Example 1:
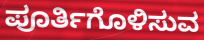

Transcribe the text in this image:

ಪೂರ್ತಿಗೊಳಿಸುವ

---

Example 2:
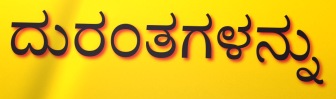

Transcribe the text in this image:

ದುರಂತಗಳನ್ನು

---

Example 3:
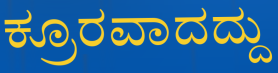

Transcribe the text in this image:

ಕ್ರೂರವಾದದ್ದು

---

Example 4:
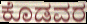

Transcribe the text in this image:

ಕೊಡವರ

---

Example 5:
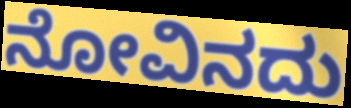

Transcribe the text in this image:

ನೋವಿನದು